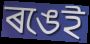
ৰঙেই